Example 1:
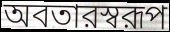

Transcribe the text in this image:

অবতারস্বরূপ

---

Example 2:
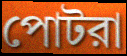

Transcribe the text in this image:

পোটরা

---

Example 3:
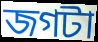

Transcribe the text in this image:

জগটা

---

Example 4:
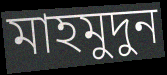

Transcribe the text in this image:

মাহমুদুন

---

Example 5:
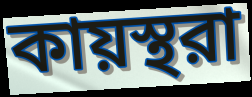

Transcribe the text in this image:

কায়স্থরা